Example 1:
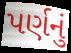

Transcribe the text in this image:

પર્ણનું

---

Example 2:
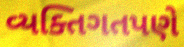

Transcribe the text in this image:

વ્યક્તિગતપણે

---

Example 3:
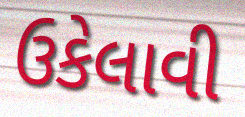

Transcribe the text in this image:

ઉકેલાવી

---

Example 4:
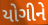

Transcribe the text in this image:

યોગીને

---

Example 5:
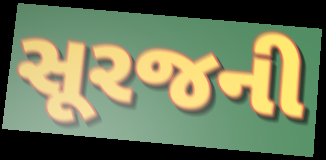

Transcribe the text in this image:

સૂરજની